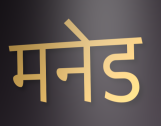
मनेड